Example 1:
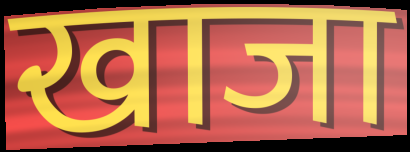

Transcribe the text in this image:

खाजा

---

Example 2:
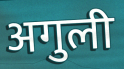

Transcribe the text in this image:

अगुली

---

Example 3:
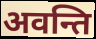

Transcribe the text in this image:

अवन्ति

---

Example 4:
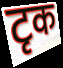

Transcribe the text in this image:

टृक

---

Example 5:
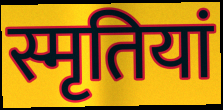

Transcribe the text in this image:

स्मृतियां